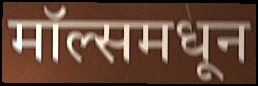
मॉल्समधून